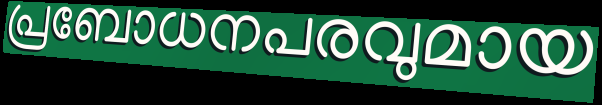
പ്രബോധനപരവുമായ